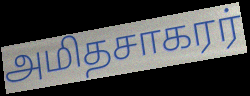
அமிதசாகரர்